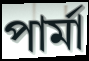
পার্মা